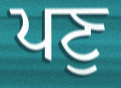
ਪਣੁ